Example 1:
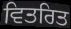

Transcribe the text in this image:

ਵਿਤਰਿਤ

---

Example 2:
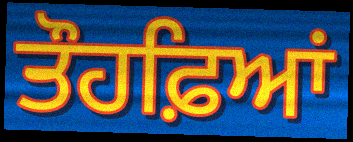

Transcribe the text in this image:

ਤੌਹਫ਼ਿਆਂ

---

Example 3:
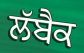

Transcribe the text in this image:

ਲੱਬੈਕ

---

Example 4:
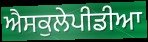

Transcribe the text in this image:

ਐਸਕੁਲੇਪੀਡੀਆ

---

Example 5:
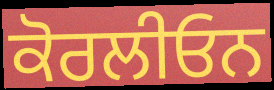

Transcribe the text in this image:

ਕੋਰਲੀਓਨ